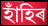
হাঁহিৰ